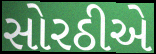
સોરઠીએ